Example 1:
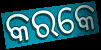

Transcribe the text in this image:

କରକେ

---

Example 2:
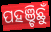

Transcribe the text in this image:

ପହଞ୍ଚିଛୁଁ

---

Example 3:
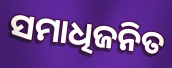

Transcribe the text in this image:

ସମାଧିଜନିତ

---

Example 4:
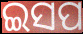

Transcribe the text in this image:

ଇସପ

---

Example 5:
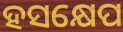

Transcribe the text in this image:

ହସକ୍ଷେପ